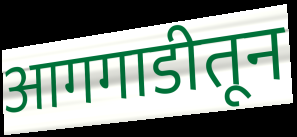
आगगाडीतून